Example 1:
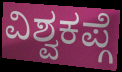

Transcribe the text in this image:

ವಿಶ್ವಕಪ್ಗೆ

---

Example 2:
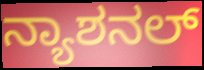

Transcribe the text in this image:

ನ್ಯಾಶನಲ್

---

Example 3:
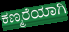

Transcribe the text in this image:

ಕಣ್ಮರೆಯಾಗಿ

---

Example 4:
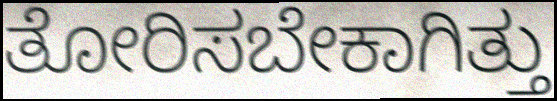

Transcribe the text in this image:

ತೋರಿಸಬೇಕಾಗಿತ್ತು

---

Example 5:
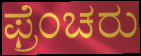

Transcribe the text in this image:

ಫ್ರೆಂಚರು